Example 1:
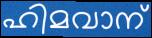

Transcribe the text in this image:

ഹിമവാന്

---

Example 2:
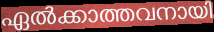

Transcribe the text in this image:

ഏൽക്കാത്തവനായി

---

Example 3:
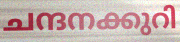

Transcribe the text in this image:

ചന്ദനക്കുറി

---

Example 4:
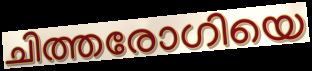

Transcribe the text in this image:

ചിത്തരോഗിയെ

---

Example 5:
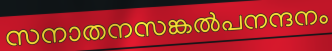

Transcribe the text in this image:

സനാതനസങ്കൽപനന്ദനം